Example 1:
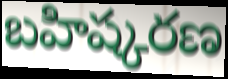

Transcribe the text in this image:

బహిష్కరణ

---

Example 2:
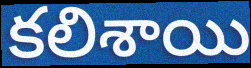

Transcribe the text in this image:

కలిశాయి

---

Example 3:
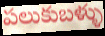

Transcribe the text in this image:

పలుకుబళ్ళు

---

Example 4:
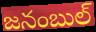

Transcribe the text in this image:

జనంబుల్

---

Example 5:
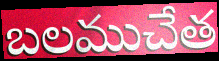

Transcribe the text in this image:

బలముచేత